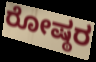
ರೋಷ್ಠರ